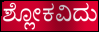
ಶ್ಲೋಕವಿದು